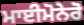
ਮਾਈਮੋਨੇਰੋ